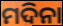
ମଦିନା